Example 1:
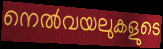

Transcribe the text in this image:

നെൽവയലുകളുടെ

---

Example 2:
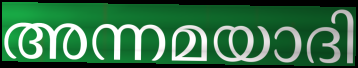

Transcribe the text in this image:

അന്നമയാദി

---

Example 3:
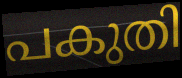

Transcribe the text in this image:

പകുതി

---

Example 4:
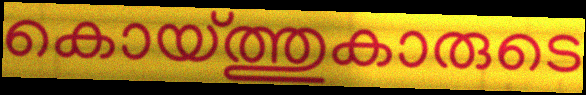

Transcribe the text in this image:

കൊയ്ത്തുകാരുടെ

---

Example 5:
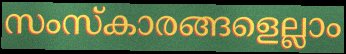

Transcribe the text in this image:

സംസ്കാരങ്ങളെല്ലാം